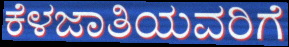
ಕೆಳಜಾತಿಯವರಿಗೆ